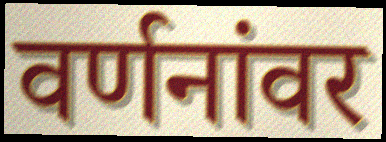
वर्णनांवर